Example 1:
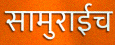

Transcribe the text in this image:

सामुराईच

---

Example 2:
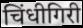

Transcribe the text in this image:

चिंधीगिरी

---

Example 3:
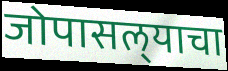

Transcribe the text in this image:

जोपासल्याचा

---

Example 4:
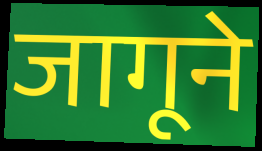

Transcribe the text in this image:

जागूने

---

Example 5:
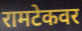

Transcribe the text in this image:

रामटेकवर